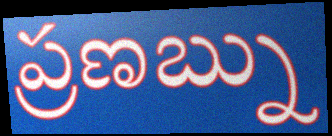
ప్రణబ్ను